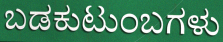
ಬಡಕುಟುಂಬಗಳು